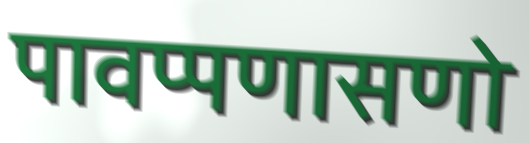
पावप्पणासणो